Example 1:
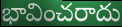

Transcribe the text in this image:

భావించరాదు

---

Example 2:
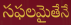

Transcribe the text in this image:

సఫలమైతేనే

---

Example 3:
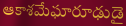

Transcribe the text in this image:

ఆకాశమేఘారూఢుడై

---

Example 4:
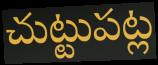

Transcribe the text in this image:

చుట్టుపట్ల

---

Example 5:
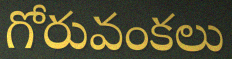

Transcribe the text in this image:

గోరువంకలు